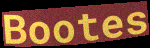
Bootes